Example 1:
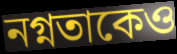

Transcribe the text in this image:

নগ্নতাকেও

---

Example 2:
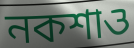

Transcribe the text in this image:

নকশাও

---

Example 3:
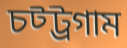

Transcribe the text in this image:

চট্ট্রগাম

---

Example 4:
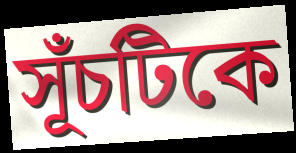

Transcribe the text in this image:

সূঁচটিকে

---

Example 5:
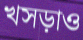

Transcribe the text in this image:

খসড়াও